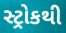
સ્ટ્રોકથી